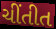
ચીંતીત